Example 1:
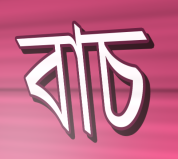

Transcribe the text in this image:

বাচ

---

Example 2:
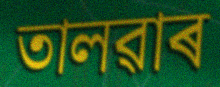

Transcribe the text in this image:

তালৱাৰ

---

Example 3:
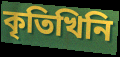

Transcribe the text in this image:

কৃতিখিনি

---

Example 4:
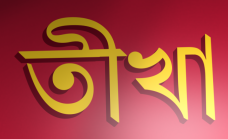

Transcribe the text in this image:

তীখা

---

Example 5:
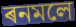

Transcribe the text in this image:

ৰনমলে